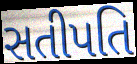
સતીપતિ